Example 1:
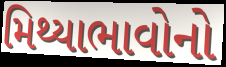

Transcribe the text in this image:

મિથ્યાભાવોનો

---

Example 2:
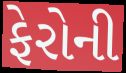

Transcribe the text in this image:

ફેરોની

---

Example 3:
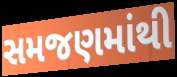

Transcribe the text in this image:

સમજણમાંથી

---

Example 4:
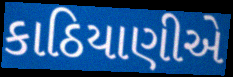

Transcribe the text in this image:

કાઠિયાણીએ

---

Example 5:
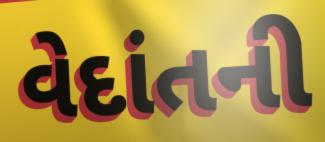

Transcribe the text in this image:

વેદાંતની